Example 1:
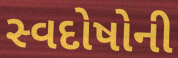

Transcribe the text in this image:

સ્વદોષોની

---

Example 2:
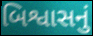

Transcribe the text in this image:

બિશ્વાસનું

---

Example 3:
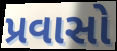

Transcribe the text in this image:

પ્રવાસો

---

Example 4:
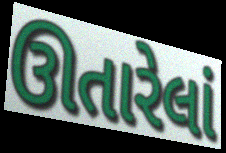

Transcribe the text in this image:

ઊતારેલાં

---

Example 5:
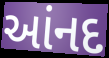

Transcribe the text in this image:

આંનદ